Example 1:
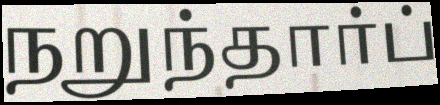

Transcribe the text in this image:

நறுந்தார்ப்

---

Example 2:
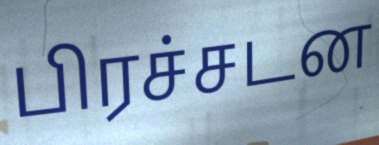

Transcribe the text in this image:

பிரச்சடன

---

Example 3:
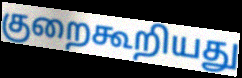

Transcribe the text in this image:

குறைகூறியது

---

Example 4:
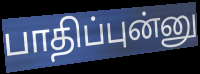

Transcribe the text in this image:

பாதிப்புன்னு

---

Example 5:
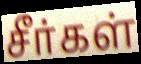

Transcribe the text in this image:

சீர்கள்